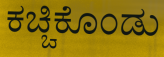
ಕಚ್ಚಿಕೊಂಡು